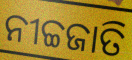
ନୀଚ୍ଚଜାତି